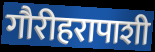
गौरीहरापाशी